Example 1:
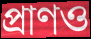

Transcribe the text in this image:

প্রাণও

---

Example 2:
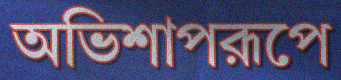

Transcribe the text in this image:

অভিশাপরূপে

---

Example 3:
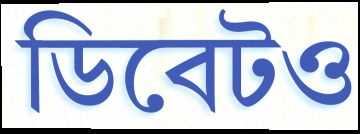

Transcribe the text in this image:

ডিবেটও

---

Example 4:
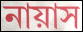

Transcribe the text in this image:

নায়াস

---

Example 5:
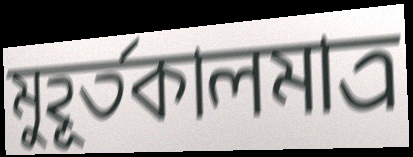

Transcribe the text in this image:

মুহূর্তকালমাত্র